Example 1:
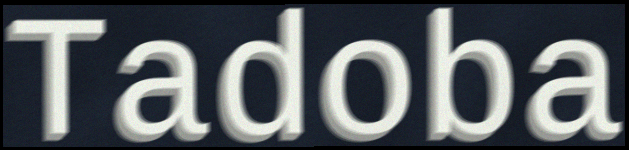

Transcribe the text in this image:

Tadoba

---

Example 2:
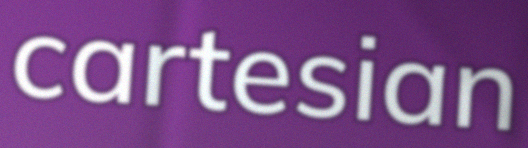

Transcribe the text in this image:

cartesian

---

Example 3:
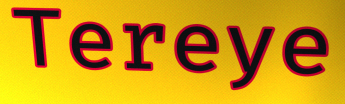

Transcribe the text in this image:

Tereye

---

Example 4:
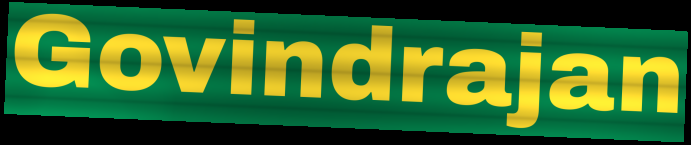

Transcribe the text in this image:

Govindrajan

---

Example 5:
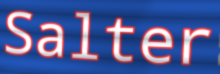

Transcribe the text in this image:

Salter